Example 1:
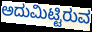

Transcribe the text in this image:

ಅದುಮಿಟ್ಟಿರುವ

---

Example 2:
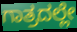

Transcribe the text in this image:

ಗಾತ್ರದಲ್ಲೇ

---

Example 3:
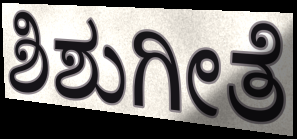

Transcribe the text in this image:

ಶಿಶುಗೀತೆ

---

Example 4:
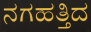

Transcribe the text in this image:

ನಗಹತ್ತಿದ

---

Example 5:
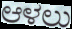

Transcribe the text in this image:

ಆಳಲು